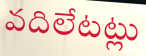
వదిలేటట్లు